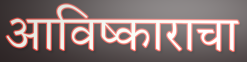
आविष्काराचा